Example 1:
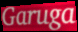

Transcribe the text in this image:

Garuga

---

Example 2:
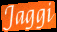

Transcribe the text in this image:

Jaggi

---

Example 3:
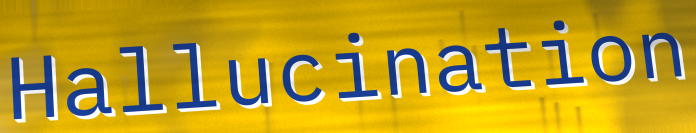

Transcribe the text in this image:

Hallucination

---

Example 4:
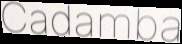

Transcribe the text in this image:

Cadamba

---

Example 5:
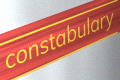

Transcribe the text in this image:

constabulary